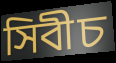
সিবীচ